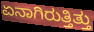
ಏನಾಗಿರುತ್ತಿತ್ತು